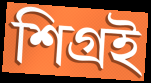
শিগ্রই